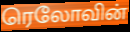
ரெலோவின்